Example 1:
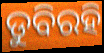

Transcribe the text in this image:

ଡୁବିରହି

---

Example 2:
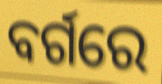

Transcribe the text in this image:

ବର୍ଗରେ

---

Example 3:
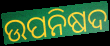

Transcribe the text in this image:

ଉପନିଷଦ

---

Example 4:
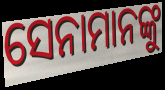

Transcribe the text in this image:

ସେନାମାନଙ୍କୁ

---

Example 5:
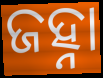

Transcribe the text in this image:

ଜହ୍ନା